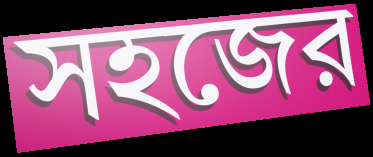
সহজের